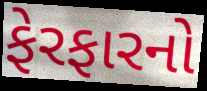
ફેરફારનો